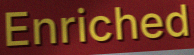
Enriched